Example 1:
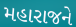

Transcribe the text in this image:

મહારાજને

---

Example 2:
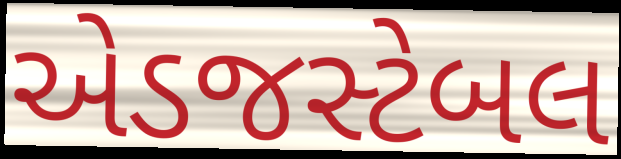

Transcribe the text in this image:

એડજસ્ટેબલ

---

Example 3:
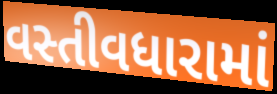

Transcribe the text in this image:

વસ્તીવધારામાં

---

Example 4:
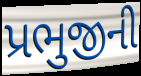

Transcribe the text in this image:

પ્રભુજીની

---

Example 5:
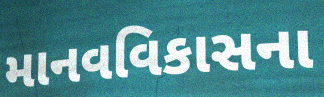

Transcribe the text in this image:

માનવવિકાસના